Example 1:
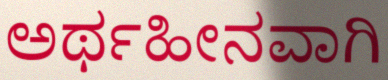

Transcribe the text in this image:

ಅರ್ಥಹೀನವಾಗಿ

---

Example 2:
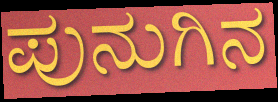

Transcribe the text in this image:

ಪುನುಗಿನ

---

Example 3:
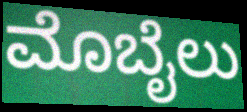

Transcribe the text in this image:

ಮೊಬೈಲು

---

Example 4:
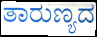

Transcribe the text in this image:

ತಾರುಣ್ಯದ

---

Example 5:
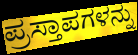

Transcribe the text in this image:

ಪ್ರಸ್ತಾಪಗಳನ್ನು